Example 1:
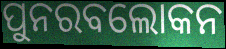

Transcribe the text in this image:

ପୁନରବଲୋକନ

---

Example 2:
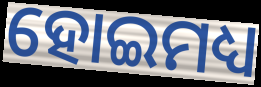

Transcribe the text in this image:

ହୋଇମଧ୍ୟ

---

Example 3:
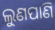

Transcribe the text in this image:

ଲୁଣପାଣି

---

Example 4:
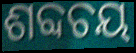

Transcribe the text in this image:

ଶବ୍ଦଚୟ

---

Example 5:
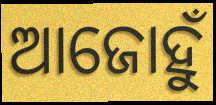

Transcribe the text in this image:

ଆଜୋହୁଁ